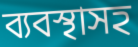
ব্যবস্থাসহ